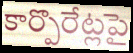
కార్పొరేట్లపై